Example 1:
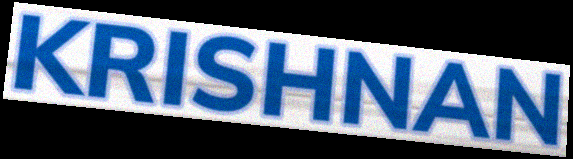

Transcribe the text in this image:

KRISHNAN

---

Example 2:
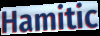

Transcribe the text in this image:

Hamitic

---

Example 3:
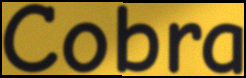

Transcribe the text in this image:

Cobra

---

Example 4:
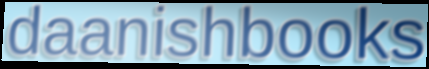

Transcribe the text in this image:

daanishbooks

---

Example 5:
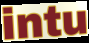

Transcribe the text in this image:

intu